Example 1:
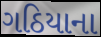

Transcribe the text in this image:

ગઠિયાના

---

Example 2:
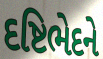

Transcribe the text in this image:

દષ્ટિભેદને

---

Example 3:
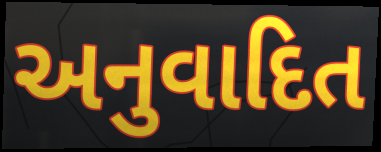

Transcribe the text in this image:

અનુવાદિત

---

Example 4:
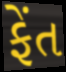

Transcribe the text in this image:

ફેંત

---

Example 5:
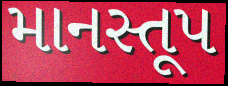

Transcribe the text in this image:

માનસ્તૂપ